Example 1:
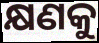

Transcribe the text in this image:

କ୍ଷଣକୁ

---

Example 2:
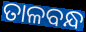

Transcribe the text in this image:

ତାଳବନ୍ଧ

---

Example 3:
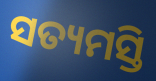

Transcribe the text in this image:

ସତ୍ୟମସ୍ତି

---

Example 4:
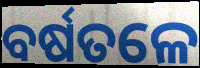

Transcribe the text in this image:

ବର୍ଷତଳେ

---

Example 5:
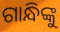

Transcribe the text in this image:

ଗାନ୍ଧିଙ୍କୁ